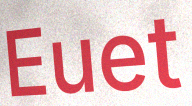
Euet